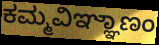
ಕಮ್ಮವಿಞ್ಞಾಣಂ